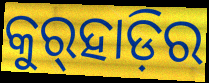
କୁର୍‍ହାଡ଼ିର